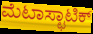
ಮೆಟಾಸ್ಟಾಟಿಕ್